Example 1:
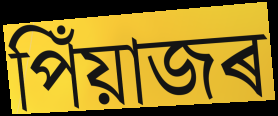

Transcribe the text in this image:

পিঁয়াজৰ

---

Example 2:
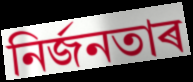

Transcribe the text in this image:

নিৰ্জনতাৰ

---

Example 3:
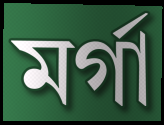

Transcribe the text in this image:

মৰ্গা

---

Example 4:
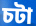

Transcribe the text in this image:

চটা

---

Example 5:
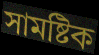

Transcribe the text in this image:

সামষ্টিক